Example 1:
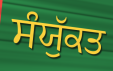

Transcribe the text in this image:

ਸੰਯੁੱਕਤ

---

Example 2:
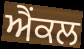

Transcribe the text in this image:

ਐਂਕਲ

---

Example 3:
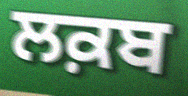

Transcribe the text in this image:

ਲਕ਼ਬ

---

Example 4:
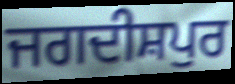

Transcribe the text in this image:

ਜਗਦੀਸ਼ਪੁਰ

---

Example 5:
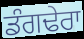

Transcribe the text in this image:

ਡੰਗਢੇਰਾ